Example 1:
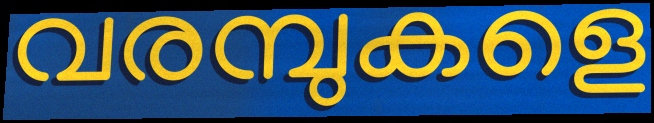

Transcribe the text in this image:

വരമ്പുകളെ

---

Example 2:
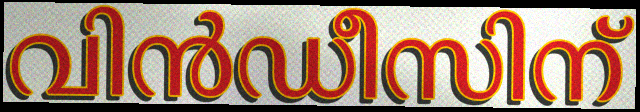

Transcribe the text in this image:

വിൻഡീസിന്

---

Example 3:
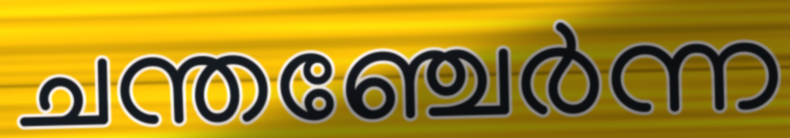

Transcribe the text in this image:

ചന്തഞ്ചേർന്ന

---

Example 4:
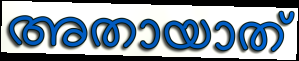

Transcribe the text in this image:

അതായാത്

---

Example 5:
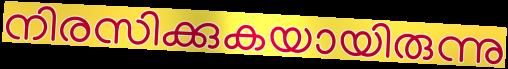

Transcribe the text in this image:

നിരസിക്കുകയായിരുന്നു